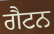
ਗੈਟਨ